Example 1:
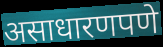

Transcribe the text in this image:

असाधारणपणे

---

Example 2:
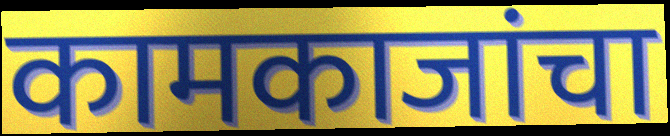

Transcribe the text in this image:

कामकाजांचा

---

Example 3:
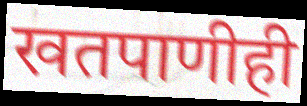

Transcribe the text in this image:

खतपाणीही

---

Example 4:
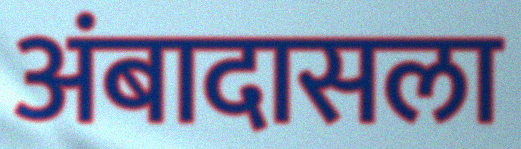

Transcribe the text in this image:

अंबादासला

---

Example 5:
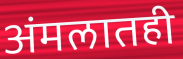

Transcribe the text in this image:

अंमलातही